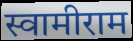
स्वामीराम